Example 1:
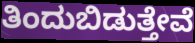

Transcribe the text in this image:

ತಿಂದುಬಿಡುತ್ತೇವೆ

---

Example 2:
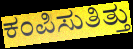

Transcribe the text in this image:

ಕಂಪಿಸುತಿತ್ತು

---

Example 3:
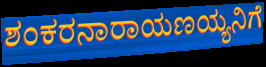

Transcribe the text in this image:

ಶಂಕರನಾರಾಯಣಯ್ಯನಿಗೆ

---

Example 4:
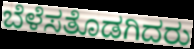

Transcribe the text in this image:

ಬೆಳೆಸತೊಡಗಿದರು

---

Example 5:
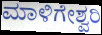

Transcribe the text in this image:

ಮಾಳಿಗೇಶ್ವರಿ